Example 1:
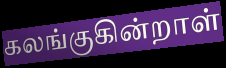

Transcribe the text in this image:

கலங்குகின்றாள்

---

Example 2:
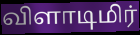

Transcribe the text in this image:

விளாடிமிர்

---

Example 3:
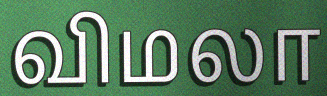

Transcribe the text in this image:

விமலா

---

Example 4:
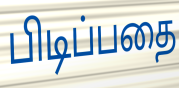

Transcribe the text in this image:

பிடிப்பதை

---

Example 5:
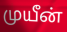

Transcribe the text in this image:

முயீன்